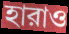
হারাও